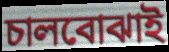
চালবোঝাই